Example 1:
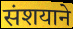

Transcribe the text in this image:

संशयाने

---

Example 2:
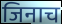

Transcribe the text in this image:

जिनाच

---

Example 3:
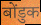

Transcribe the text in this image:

बोंडुक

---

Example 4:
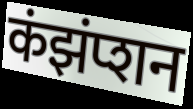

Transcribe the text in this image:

कंझंप्शन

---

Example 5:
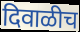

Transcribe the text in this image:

दिवाळीच